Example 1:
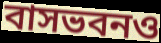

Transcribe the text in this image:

বাসভবনও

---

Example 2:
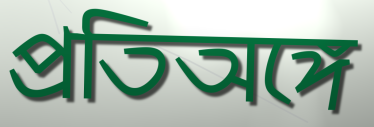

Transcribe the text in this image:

প্রতিঅঙ্গে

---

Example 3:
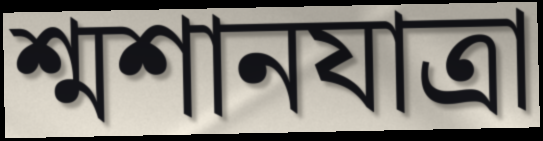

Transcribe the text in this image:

শ্মশানযাত্রা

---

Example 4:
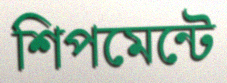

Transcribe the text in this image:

শিপমেন্টে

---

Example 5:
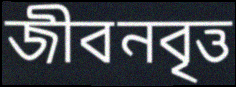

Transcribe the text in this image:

জীবনবৃত্ত